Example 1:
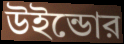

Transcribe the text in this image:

উইন্ডোর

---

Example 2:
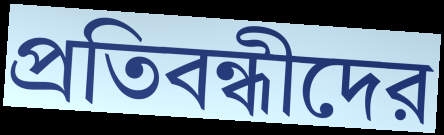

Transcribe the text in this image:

প্রতিবন্ধীদের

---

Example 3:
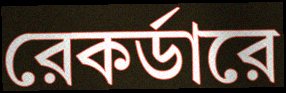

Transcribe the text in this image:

রেকর্ডারে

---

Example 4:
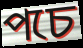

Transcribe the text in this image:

পচে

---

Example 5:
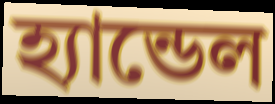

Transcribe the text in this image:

হ্যান্ডেল